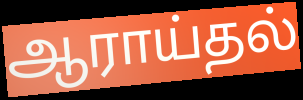
ஆராய்தல்